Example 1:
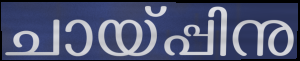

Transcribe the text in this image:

ചായ്പ്പിനു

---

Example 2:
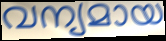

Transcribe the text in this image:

വന്യമായ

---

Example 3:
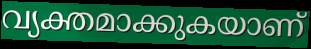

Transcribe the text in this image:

വ്യക്തമാക്കുകയാണ്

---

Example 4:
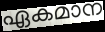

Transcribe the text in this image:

ഏകമാന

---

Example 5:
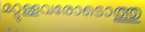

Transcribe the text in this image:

മറ്റുള്ളവരോടൊത്തു